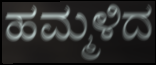
ಹಮ್ಮಳಿದ